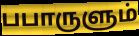
பபாருளும்